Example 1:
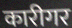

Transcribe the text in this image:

कारीगर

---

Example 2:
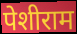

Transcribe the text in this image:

पेशीराम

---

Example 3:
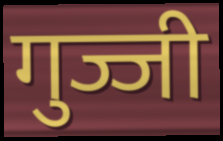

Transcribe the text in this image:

गुज्जी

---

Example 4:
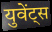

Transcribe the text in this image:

युवेंट्स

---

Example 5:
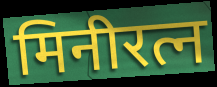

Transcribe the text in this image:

मिनीरत्न